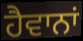
ਹੈਵਾਨਾਂ